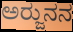
ಅರ್‍ಜುನನ